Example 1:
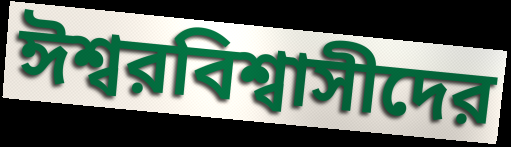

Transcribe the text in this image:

ঈশ্বরবিশ্বাসীদের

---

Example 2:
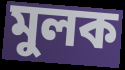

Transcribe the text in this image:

মুলক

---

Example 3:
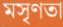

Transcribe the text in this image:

মসৃণতা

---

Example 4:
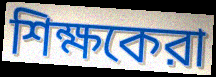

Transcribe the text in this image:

শিক্ষকেরা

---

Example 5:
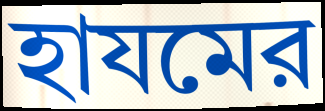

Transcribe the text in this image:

হাযমের